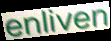
enliven